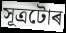
সূত্ৰটোৰ